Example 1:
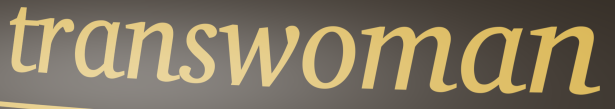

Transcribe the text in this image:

transwoman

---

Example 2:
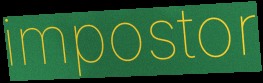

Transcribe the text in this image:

impostor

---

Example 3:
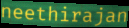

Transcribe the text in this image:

neethirajan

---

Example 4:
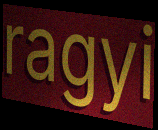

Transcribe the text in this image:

ragyi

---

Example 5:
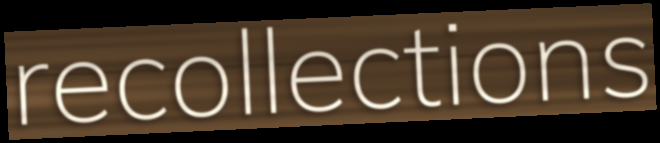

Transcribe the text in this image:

recollections